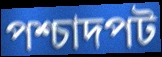
পশ্চাদপট